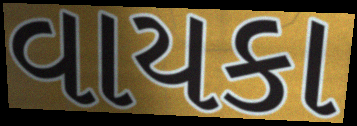
વાયકા